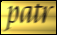
patr